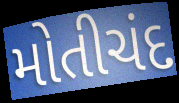
મોતીચંદ